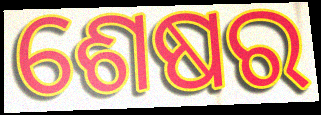
ଶେଷର